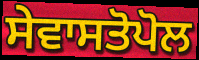
ਸੇਵਾਸਤੋਪੋਲ